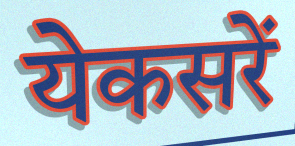
येकसरें